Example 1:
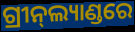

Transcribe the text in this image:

ଗ୍ରୀନ୍‍ଲ୍ୟାଣ୍ଡରେ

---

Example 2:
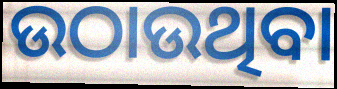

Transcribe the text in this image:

ଉଠାଉଥିବା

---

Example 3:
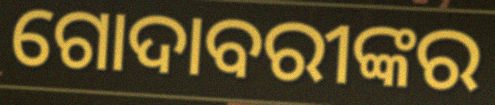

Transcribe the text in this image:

ଗୋଦାବରୀଙ୍କର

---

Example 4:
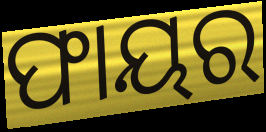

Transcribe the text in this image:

ଫାୟର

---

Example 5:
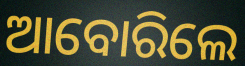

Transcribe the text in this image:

ଆବୋରିଲେ